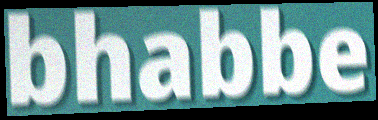
bhabbe